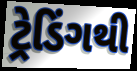
ટ્રેડિંગથી